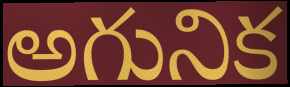
అగునిక